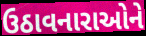
ઉઠાવનારાઓને